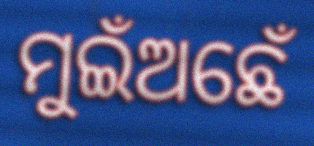
ମୁଇଁଅଛେଁ